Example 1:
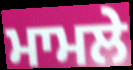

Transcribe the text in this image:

ਮਾਮਲੇ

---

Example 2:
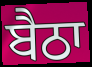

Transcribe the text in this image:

ਬੈਠਾ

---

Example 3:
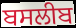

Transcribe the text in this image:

ਬਸਲੀਬ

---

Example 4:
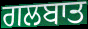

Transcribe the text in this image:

ਗਲਬਾਤ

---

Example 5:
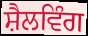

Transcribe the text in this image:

ਸ਼ੈਲਵਿੰਗ